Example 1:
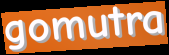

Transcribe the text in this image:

gomutra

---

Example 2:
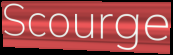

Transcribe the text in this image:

Scourge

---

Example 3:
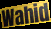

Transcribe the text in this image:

Wahid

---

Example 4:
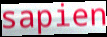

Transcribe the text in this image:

sapien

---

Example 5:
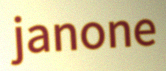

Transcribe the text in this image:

janone